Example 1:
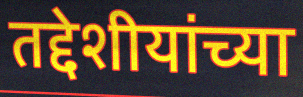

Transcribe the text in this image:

तद्देशीयांच्या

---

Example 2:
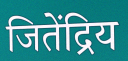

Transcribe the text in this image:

जितेंद्रिय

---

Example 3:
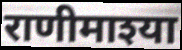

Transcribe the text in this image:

राणीमाश्या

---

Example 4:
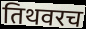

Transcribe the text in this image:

तिथवरच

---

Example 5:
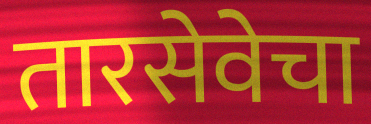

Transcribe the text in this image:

तारसेवेचा